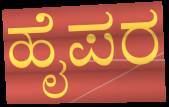
ಹೈಪರ